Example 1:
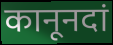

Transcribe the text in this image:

कानूनदां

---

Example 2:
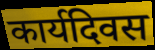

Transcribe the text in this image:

कार्यदिवस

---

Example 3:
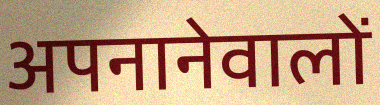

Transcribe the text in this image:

अपनानेवालों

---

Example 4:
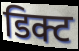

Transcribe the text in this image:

डिक्ट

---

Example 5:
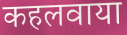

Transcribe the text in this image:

कहलवाया